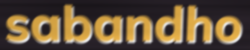
sabandho